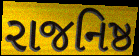
રાજનિષ્ઠ